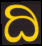
ದಿ